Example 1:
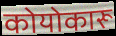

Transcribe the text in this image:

कोयोकारू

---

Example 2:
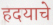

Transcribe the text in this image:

हदयाचे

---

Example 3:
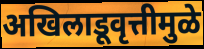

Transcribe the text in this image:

अखिलाडूवृत्तीमुळे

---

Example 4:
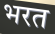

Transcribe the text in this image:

भरत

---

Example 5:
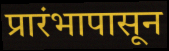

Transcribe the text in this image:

प्रारंभापासून